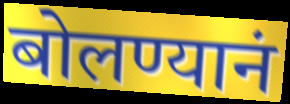
बोलण्यानं